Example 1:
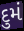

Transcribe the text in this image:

દુમં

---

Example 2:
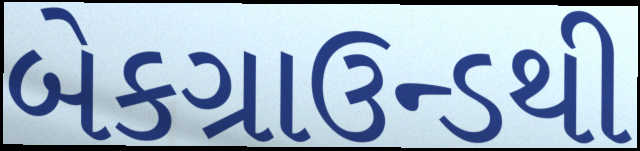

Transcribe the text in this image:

બેકગ્રાઉન્ડથી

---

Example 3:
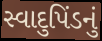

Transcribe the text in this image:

સ્વાદુપિંડનું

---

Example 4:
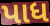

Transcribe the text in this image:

પાધ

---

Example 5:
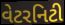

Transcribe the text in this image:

વેટરનિટી